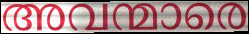
അവന്മാരെ